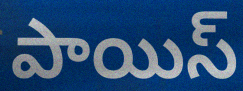
పాయిస్